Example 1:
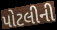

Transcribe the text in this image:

પોટલીની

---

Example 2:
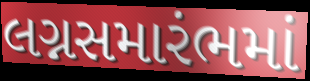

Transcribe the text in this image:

લગ્નસમારંભમાં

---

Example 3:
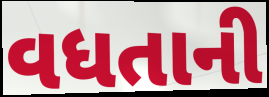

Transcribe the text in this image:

વધતાની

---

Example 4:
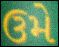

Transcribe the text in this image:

ઉમે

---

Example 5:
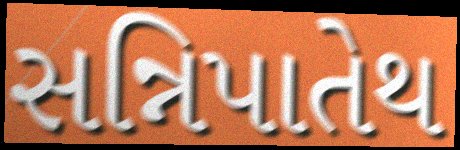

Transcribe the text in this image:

સન્નિપાતેથ